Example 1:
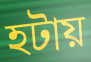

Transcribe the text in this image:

হটায়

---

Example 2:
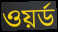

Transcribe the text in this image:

ওয়র্ড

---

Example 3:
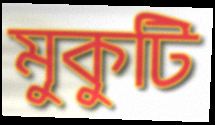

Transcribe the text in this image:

মুকুটি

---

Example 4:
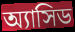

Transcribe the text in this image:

অ্যাসিড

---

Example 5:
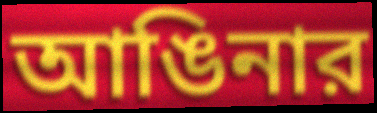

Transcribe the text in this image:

আঙিনার